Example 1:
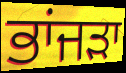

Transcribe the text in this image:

ਭਾਂਜੜਾ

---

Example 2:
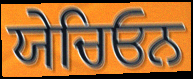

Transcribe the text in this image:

ਯੇਚਿਓਨ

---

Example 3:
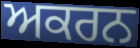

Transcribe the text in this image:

ਅਕਰਨ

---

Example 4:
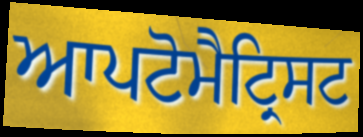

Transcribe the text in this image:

ਆਪਟੋਮੈਟ੍ਰਿਸਟ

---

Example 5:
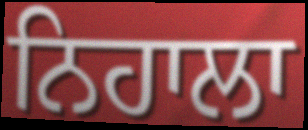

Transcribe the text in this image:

ਨਿਹਾਲਾ